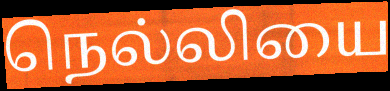
நெல்லியை